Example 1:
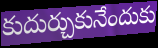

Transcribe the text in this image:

కుదుర్చుకునేందుకు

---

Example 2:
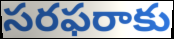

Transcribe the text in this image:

సరఫరాకు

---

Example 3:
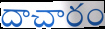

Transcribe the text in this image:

దాచారం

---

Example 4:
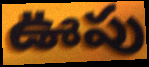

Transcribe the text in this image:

ఊపు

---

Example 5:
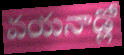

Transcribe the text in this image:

వయనాడ్లో